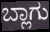
ಬ್ಲಾಗು